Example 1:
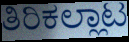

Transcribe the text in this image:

ತಿರಿಕಲ್ಲಾಟ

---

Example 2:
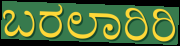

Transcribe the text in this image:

ಬರಲಾರಿರಿ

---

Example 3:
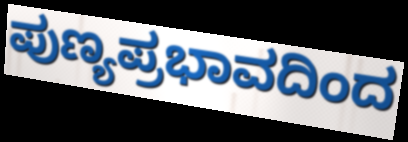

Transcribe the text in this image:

ಪುಣ್ಯಪ್ರಭಾವದಿಂದ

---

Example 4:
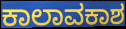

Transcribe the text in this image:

ಕಾಲಾವಕಾಶ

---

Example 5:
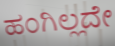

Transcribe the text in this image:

ಹಂಗಿಲ್ಲದೇ